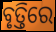
ବୃତ୍ତିରେ